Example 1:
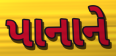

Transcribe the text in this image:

પાનાને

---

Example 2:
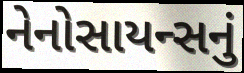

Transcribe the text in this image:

નેનોસાયન્સનું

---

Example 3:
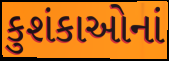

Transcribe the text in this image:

કુશંકાઓનાં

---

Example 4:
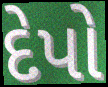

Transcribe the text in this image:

દેપો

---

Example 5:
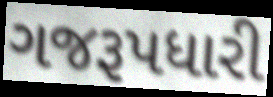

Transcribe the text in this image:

ગજરૂપધારી